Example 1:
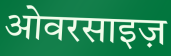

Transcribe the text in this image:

ओवरसाइज़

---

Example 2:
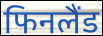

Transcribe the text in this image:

फिनलैंड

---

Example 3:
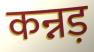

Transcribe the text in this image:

कन्नड़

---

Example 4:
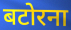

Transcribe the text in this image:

बटोरना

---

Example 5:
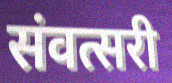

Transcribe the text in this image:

संवत्सरी